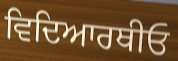
ਵਿਦਿਆਰਥੀਓ